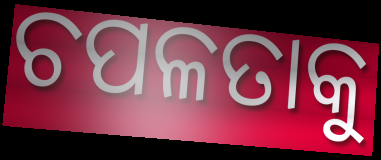
ଚପଳତାକୁ